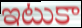
ఇటుకా